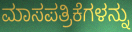
ಮಾಸಪತ್ರಿಕೆಗಳನ್ನು